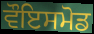
ਵੌਇਸਮੋਡ